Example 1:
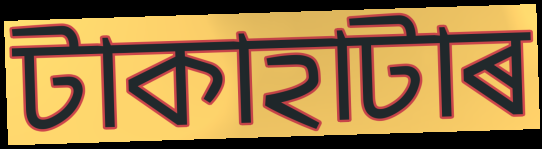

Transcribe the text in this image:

টাকাহাটাৰ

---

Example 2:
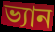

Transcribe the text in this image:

ভ্যান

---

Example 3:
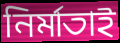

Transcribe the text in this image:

নিৰ্মাতাই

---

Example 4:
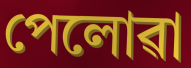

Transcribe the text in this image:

পেলোৱা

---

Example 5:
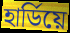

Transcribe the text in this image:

হাৰ্ডিয়ে